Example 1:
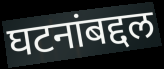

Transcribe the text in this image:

घटनांबद्दल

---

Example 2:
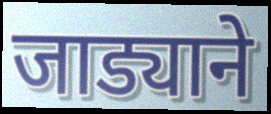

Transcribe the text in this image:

जाड्याने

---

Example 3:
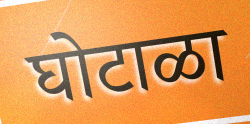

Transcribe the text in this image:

घोटाळा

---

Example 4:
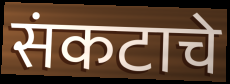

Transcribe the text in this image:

संकटाचे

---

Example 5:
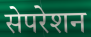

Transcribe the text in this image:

सेपरेशन